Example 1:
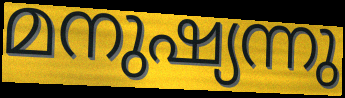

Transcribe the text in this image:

മനുഷ്യന്നു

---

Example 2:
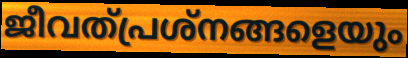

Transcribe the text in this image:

ജീവത്പ്രശ്നങ്ങളെയും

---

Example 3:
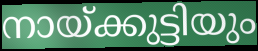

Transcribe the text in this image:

നായ്ക്കുട്ടിയും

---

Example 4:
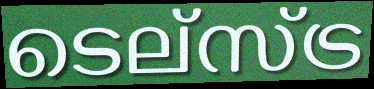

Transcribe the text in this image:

ടെല്സ്ട്ര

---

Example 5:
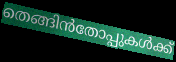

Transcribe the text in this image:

തെങ്ങിൻതോപ്പുകൾക്ക്